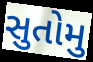
સુતોમુ